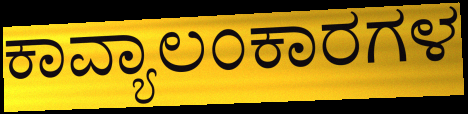
ಕಾವ್ಯಾಲಂಕಾರಗಳ